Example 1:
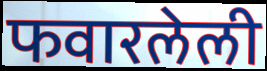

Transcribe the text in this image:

फवारलेली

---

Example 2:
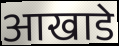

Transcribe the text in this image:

आखाडे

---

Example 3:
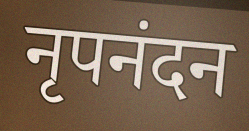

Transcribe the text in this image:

नृपनंदन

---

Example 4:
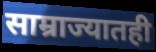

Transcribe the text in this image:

साम्राज्यातही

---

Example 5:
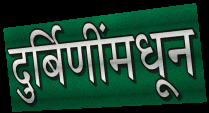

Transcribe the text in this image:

दुर्बिणींमधून